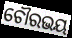
ଚୌରଭୟ